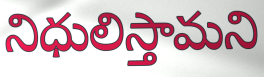
నిధులిస్తామని